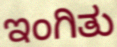
ಇಂಗಿತು